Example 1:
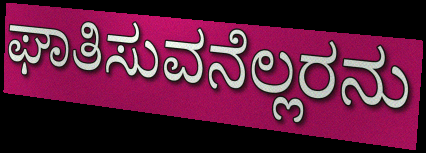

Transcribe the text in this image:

ಘಾತಿಸುವನೆಲ್ಲರನು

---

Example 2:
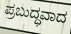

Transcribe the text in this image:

ಪ್ರಬುದ್ಧವಾದ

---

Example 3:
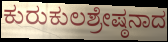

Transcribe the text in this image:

ಕುರುಕುಲಶ್ರೇಷ್ಠನಾದ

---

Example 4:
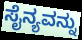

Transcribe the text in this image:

ಸೈನ್ಯವನ್ನು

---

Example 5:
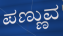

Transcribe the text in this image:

ಪಣ್ಣುವ